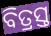
ବିତ୍ରସ୍ତ